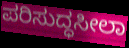
ಪರಿಸುದ್ಧಸೀಲಾ